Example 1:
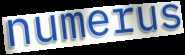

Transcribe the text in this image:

numerus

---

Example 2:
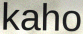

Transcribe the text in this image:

kaho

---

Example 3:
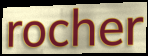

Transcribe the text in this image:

rocher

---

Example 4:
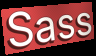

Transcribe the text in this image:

Sass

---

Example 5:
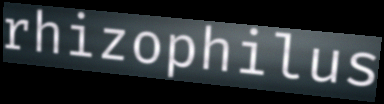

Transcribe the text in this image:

rhizophilus